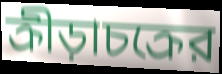
ক্রীড়াচক্রের